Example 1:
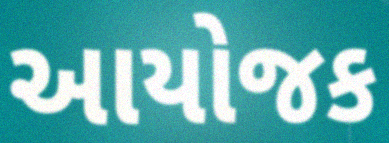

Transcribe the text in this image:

આયોજક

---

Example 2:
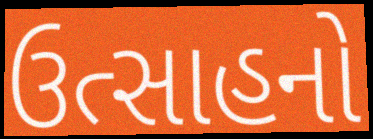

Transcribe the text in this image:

ઉત્સાહનો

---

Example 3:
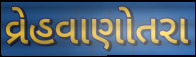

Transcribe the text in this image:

વ્રેહવાણોતરા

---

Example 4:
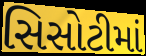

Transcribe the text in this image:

સિસોટીમાં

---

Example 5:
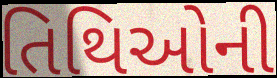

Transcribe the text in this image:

તિથિઓની